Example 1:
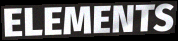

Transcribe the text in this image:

ELEMENTS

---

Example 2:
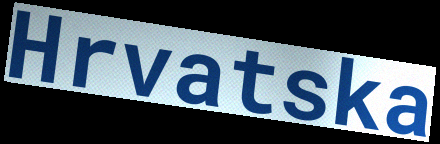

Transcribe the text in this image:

Hrvatska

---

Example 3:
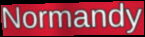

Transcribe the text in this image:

Normandy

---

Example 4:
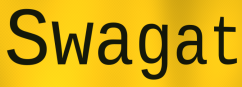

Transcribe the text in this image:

Swagat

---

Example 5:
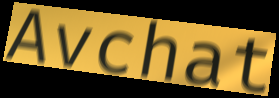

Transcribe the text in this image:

Avchat